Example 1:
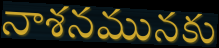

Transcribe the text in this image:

నాశనమునకు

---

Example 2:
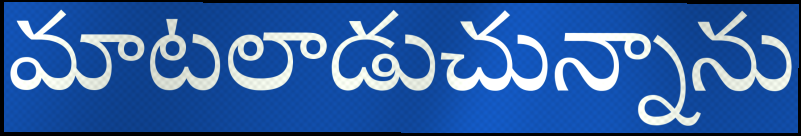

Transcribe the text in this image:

మాటలాడుచున్నాను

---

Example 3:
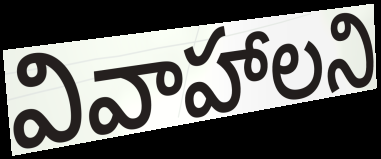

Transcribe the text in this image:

వివాహాలని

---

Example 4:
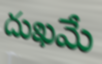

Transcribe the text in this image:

దుఖమే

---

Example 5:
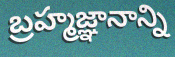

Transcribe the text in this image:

బ్రహ్మజ్ఞానాన్ని